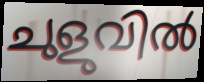
ചുളുവിൽ